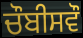
ਚੌਬੀਸਵੌ